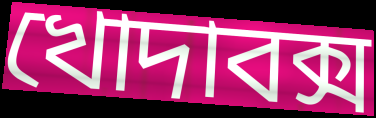
খোদাবক্স